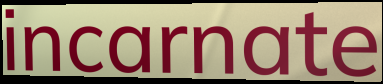
incarnate